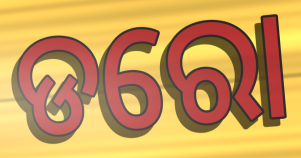
ଡରୋ